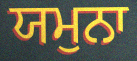
ਯਮੁਨਾ